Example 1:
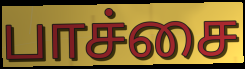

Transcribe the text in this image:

பாச்சை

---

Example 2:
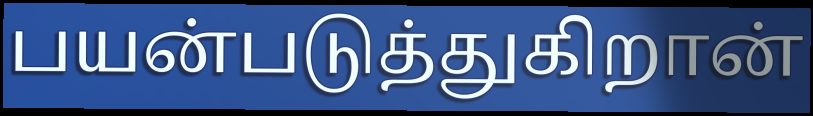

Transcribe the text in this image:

பயன்படுத்துகிறான்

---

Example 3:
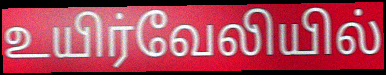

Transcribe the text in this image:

உயிர்வேலியில்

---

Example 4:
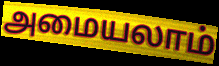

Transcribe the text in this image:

அமையலாம்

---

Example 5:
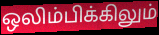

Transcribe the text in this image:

ஒலிம்பிக்கிலும்